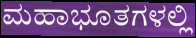
ಮಹಾಭೂತಗಳಲ್ಲಿ